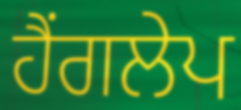
ਹੈਂਗਲੇਪ